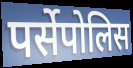
पर्सेपोलिस